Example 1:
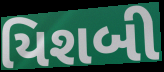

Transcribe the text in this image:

યિશબી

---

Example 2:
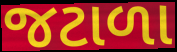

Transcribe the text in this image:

જટાળા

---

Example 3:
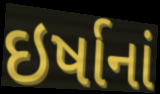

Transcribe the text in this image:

ઇર્ષાનાં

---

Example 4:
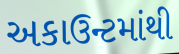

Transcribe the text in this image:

અકાઉન્ટમાંથી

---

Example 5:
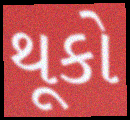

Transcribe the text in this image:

થૂકો